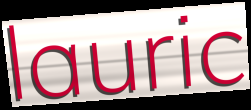
lauric